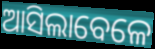
ଆସିଲାବେଳେ